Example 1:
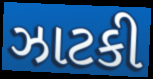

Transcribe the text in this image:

ઝાટકી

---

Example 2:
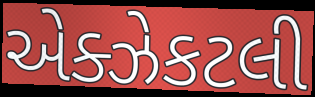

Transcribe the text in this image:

એક્ઝેકટલી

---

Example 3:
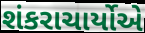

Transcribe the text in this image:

શંકરાચાર્યોએ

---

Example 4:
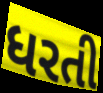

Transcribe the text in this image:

ધરતી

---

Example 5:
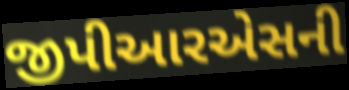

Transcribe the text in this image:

જીપીઆરએસની